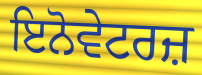
ਇਨੋਵੇਟਰਜ਼